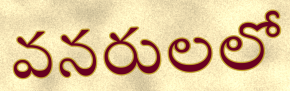
వనరులలో